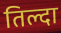
तिल्दा